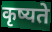
कृष्यते